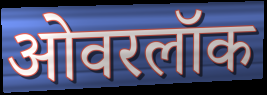
ओवरलॉक